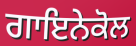
ਗਾਇਨੇਕੋਲ